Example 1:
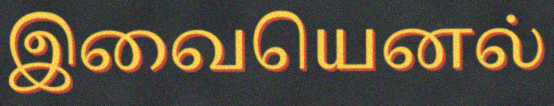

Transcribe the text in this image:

இவையெனல்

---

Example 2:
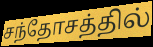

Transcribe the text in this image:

சந்தோசத்தில்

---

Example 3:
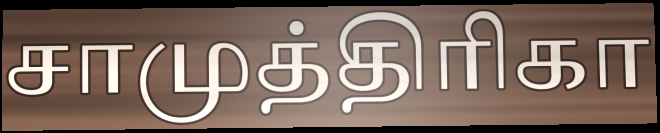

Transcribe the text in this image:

சாமுத்திரிகா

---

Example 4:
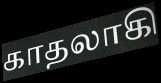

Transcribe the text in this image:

காதலாகி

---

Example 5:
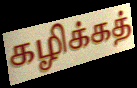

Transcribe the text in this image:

கழிக்கத்